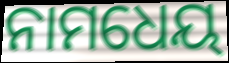
ନାମଧେୟ